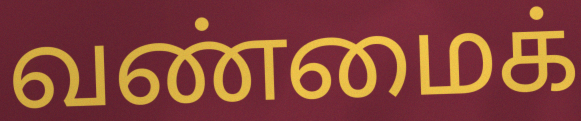
வண்மைக்